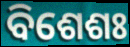
ବିଶେଶଃ